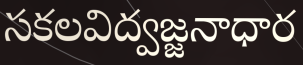
సకలవిద్వజ్జనాధార